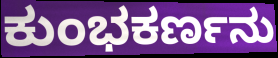
ಕುಂಭಕರ್ಣನು